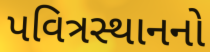
પવિત્રસ્થાનનો